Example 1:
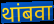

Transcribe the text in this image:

थांबवा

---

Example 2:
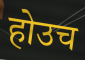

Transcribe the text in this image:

होउच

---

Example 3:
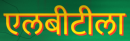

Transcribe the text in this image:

एलबीटीला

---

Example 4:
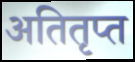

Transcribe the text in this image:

अतितृप्त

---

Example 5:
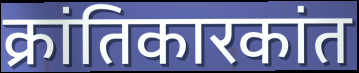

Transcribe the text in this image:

क्रांतिकारकांत